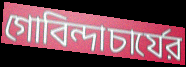
গোবিন্দাচার্যের